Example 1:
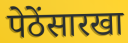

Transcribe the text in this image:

पेठेंसारखा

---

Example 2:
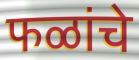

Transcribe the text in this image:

फळांचे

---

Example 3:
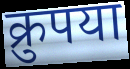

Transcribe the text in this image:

क्रुपया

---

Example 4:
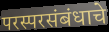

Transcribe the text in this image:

परस्परसंबंधाचे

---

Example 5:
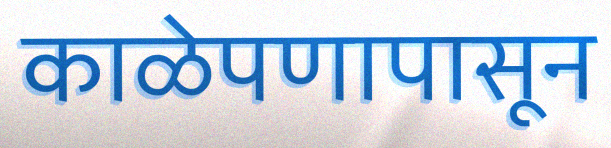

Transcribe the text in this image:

काळेपणापासून